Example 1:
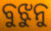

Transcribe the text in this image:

ବୁଝୁନୁ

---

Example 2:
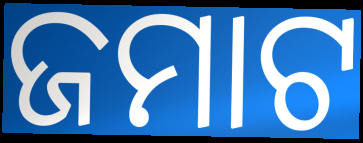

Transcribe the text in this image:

ଜମାଟ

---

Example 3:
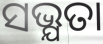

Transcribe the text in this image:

ସଭ୍ଯତା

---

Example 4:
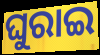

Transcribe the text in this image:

ଘୁରାଇ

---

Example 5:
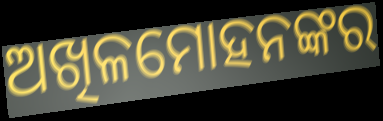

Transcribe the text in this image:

ଅଖିଳମୋହନଙ୍କର